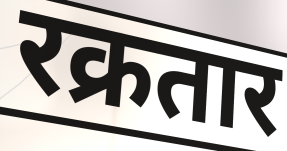
रक्रतार